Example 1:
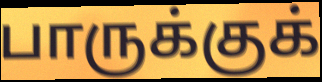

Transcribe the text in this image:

பாருக்குக்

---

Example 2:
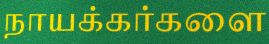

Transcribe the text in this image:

நாயக்கர்களை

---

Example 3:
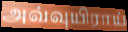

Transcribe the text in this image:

அவ்வுயிராய்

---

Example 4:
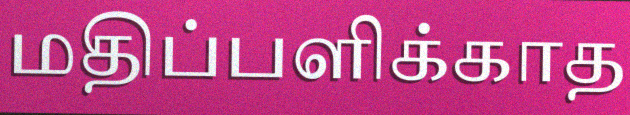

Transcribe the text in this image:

மதிப்பளிக்காத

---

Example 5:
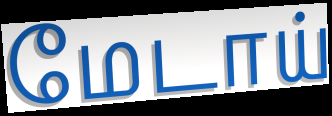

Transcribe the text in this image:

மேடாய்